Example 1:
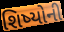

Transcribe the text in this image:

શિષ્યોની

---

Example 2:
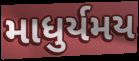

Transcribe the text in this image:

માધુર્યમય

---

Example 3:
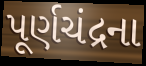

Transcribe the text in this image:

પૂર્ણચંદ્રના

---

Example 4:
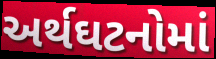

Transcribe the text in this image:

અર્થઘટનોમાં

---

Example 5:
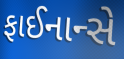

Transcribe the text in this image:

ફાઈનાન્સે